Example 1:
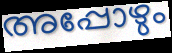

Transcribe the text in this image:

അപ്പോഴും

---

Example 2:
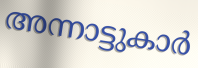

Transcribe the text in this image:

അന്നാട്ടുകാർ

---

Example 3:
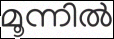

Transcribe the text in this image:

മൂന്നിൽ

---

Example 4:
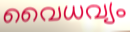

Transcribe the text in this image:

വൈധവ്യം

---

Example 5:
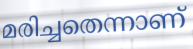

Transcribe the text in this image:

മരിച്ചതെന്നാണ്